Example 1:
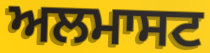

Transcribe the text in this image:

ਅਲਮਾਸਟ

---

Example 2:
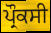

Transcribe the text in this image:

ਪ੍ਰੌਕਸੀ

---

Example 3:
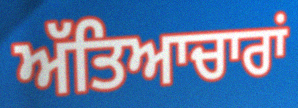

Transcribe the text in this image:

ਅੱਤਿਆਚਾਰਾਂ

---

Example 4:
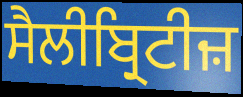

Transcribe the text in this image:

ਸੈਲੀਬ੍ਰਿਟੀਜ਼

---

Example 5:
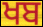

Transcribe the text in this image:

ਖਬ